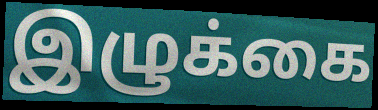
இழுக்கை